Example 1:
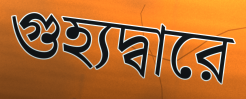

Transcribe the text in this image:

গুহ্যদ্বারে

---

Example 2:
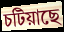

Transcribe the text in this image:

চটিয়াছে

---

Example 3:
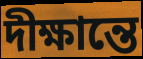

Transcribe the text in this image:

দীক্ষান্তে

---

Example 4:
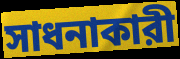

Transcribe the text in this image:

সাধনাকারী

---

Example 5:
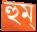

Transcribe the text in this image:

হুম্